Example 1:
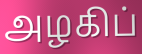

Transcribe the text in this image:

அழகிப்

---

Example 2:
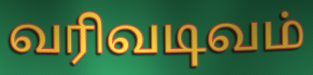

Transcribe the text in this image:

வரிவடிவம்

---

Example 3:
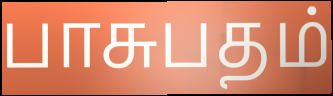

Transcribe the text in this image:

பாசுபதம்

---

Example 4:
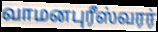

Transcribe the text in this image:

வாமனபுரீஸ்வரர்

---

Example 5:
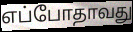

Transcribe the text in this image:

எப்போதாவது